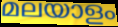
മലയാളം